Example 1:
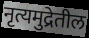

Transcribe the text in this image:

नृत्यमुद्रेतील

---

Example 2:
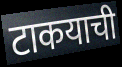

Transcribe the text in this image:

टाकयाची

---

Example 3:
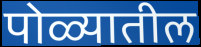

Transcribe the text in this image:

पोळ्यातील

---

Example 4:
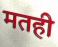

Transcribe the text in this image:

मतही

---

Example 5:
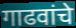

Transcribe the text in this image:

गाढवांचे